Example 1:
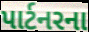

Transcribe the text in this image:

પાર્ટનરના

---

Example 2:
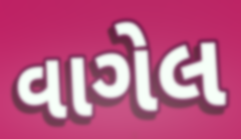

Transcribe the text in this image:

વાગેલ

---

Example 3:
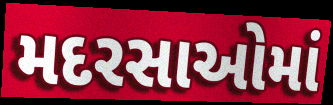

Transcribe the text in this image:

મદરસાઓમાં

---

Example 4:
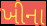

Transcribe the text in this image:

ખીના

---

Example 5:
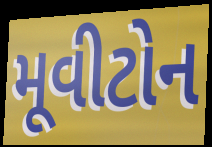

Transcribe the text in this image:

મૂવીટોન